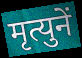
मृत्युनें